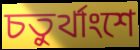
চতুর্থাংশে